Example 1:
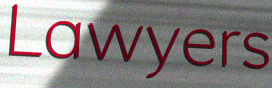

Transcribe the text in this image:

Lawyers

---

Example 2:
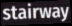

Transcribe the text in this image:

stairway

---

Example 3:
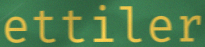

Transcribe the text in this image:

ettiler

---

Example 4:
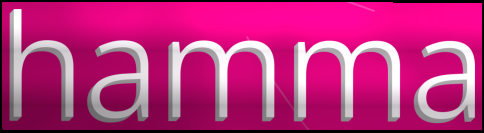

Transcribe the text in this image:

hamma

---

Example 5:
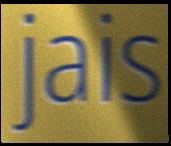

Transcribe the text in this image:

jais